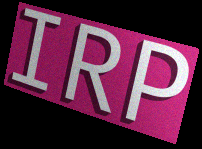
IRP